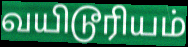
வயிடூரியம்